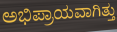
ಅಭಿಪ್ರಾಯವಾಗಿತ್ತು